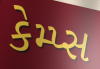
કેમ્પ્સ